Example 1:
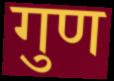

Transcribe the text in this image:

गुण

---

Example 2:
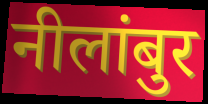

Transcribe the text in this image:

नीलांबुर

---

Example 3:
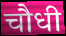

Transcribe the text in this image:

चौधी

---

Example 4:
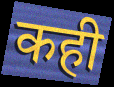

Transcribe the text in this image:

कही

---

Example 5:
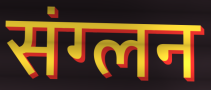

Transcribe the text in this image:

संग्लन